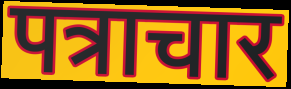
पत्राचार